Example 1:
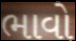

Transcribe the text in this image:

ભાવો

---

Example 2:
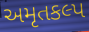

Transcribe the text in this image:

અમૃતકલ્પ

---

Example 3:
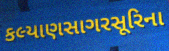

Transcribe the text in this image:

કલ્યાણસાગરસૂરિના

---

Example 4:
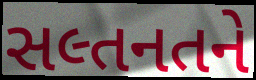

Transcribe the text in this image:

સલ્તનતને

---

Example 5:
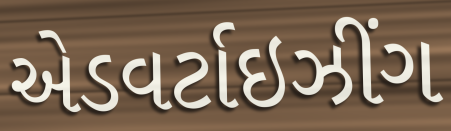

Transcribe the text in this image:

એડવર્ટાઇઝીંગ